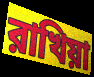
রাখিয়া